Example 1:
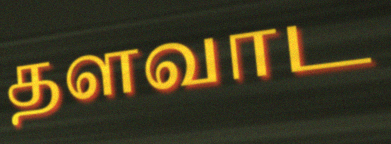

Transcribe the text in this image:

தளவாட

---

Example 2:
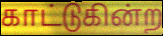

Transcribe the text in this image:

காட்டுகின்ற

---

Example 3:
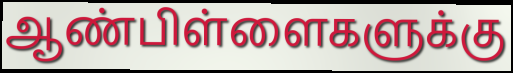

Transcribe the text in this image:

ஆண்பிள்ளைகளுக்கு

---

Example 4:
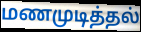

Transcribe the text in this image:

மணமுடித்தல்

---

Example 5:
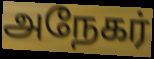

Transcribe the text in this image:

அநேகர்